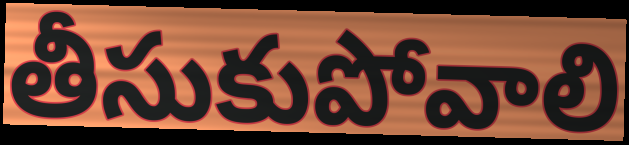
తీసుకుపోవాలి